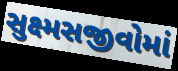
સુક્ષ્મસજીવોમાં